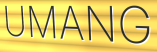
UMANG